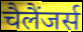
चैलैंजर्स